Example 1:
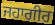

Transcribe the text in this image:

ਜਹਾਗੀਰ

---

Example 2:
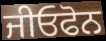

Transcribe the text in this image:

ਜੀਓਫੋਨ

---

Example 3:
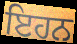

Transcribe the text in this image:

ਇਹਨ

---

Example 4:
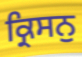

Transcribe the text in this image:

ਕ੍ਰਿਸਨੁ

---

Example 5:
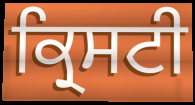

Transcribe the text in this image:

ਕ੍ਰਿਸਟੀ